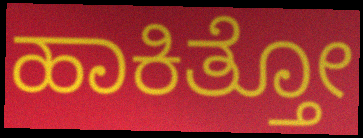
ಹಾಕಿತ್ತೋ